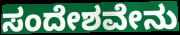
ಸಂದೇಶವೇನು